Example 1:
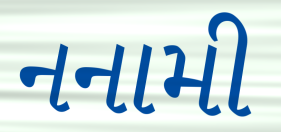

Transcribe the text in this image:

નનામી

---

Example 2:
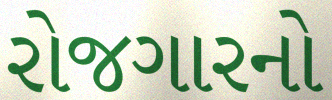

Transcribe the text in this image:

રોજગારનો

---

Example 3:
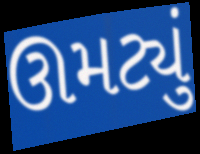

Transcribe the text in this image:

ઊમટ્યું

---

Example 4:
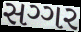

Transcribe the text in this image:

સગ્ગર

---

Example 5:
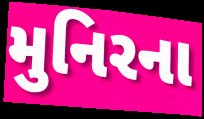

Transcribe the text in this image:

મુનિરના